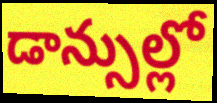
డాన్సుల్లో